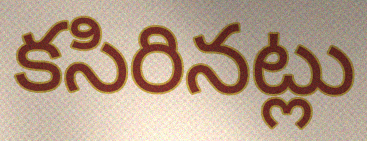
కసిరినట్లు